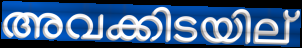
അവക്കിടയില്